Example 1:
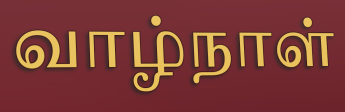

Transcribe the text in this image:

வாழ்நாள்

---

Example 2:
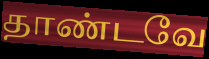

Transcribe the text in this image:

தாண்டவே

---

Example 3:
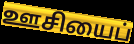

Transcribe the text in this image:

ஊசியைப்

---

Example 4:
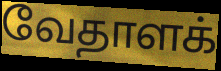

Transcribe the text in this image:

வேதாளக்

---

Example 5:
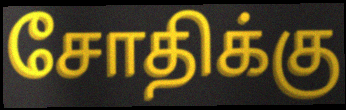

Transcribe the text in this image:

சோதிக்கு